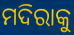
ମଦିରାକୁ